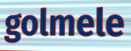
golmele